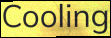
Cooling